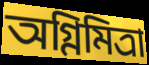
অগ্নিমিত্রা